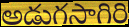
అడుగసాగిరి